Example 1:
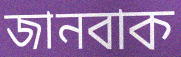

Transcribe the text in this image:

জানবাক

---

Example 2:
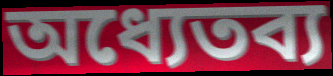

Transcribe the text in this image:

অধ্যেতব্য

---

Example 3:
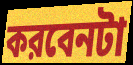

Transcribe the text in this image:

করবেনটা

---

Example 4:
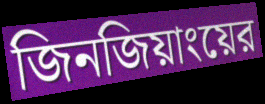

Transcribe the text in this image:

জিনজিয়াংয়ের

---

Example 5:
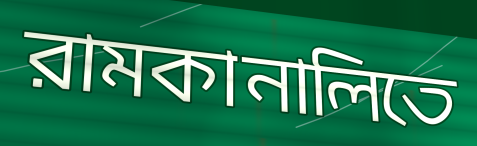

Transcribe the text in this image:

রামকানালিতে